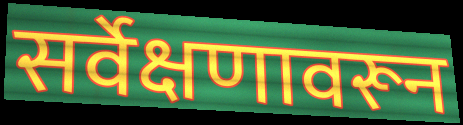
सर्वेक्षणावरून